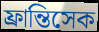
ফ্রান্তিসেক